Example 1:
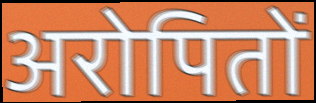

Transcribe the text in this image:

अरोपितों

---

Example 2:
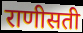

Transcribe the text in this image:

राणीसती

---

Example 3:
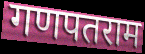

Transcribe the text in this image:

गणपतराम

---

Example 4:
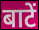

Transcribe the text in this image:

बाटें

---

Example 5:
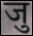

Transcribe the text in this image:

जु